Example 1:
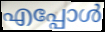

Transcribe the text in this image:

എപ്പോൾ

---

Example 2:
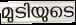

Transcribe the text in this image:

മുടിയുടെ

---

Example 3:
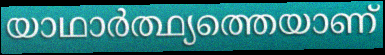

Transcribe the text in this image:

യാഥാർത്ഥ്യത്തെയാണ്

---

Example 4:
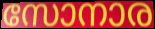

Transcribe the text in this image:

സോനാര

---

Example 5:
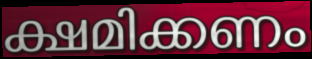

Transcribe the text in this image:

ക്ഷമിക്കണം